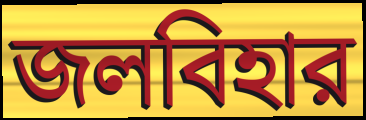
জলবিহার